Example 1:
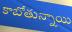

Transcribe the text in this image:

కాబోతున్నాయి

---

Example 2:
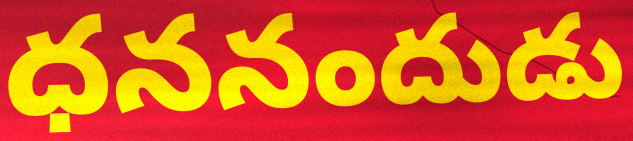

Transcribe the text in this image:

ధననందుడు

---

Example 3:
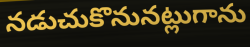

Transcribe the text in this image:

నడుచుకొనునట్లుగాను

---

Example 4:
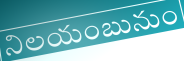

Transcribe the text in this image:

నిలయంబునుం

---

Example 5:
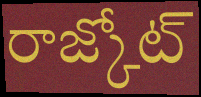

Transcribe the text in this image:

రాజ్కోట్